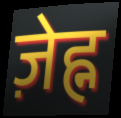
ज़ेह्न